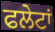
ਫਲੇਟਾਂ